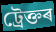
ট্ৰেক্তৰ